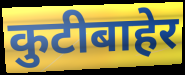
कुटीबाहेर